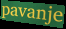
pavanje